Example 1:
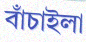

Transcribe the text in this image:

বাঁচাইলা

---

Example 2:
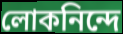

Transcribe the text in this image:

লোকনিন্দে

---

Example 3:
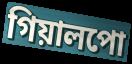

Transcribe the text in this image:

গিয়ালপো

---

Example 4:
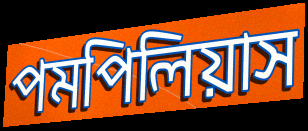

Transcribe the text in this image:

পমপিলিয়াস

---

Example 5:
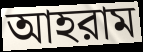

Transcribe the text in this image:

আহরাম